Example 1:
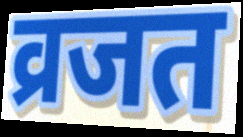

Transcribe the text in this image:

व्रजत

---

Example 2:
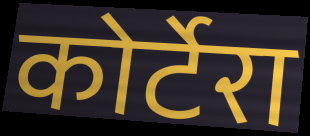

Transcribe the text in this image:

कोर्टेरा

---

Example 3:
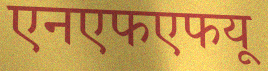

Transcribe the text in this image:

एनएफएफयू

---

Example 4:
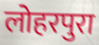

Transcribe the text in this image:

लोहरपुरा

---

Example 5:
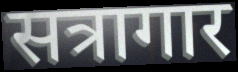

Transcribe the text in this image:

सत्रागार